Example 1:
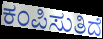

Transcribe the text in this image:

ಕಂಪಿಸುತಿದೆ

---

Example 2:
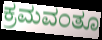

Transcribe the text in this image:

ಕ್ರಮವಂತೂ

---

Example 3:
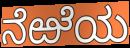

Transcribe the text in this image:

ನೆಱೆಯ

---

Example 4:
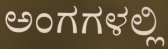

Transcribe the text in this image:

ಅಂಗಗಳಲ್ಲಿ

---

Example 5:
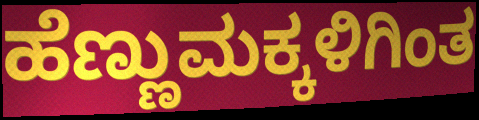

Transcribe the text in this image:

ಹೆಣ್ಣುಮಕ್ಕಳಿಗಿಂತ